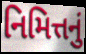
નિમિત્તનું